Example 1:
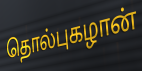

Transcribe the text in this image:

தொல்புகழான்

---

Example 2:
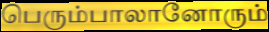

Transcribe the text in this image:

பெரும்பாலானோரும்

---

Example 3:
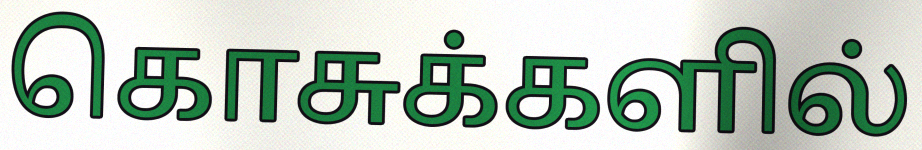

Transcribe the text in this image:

கொசுக்களில்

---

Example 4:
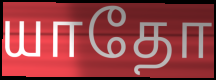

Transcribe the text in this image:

யாதோ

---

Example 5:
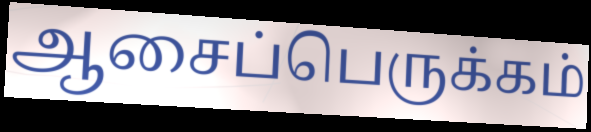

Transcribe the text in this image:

ஆசைப்பெருக்கம்